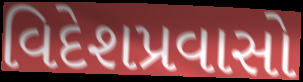
વિદેશપ્રવાસો